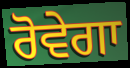
ਰੋਵੇਗਾ